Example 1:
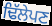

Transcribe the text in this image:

ਢਿੱਲੇਪਣ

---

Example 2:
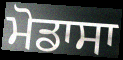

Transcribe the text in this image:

ਮੋਡਾਸਾ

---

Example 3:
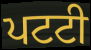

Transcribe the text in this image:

ਪਟਟੀ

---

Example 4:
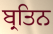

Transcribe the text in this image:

ਬ੍ਰਤਿਨ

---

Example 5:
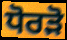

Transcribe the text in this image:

ਧੋਰੜੋ